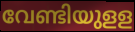
വേണ്ടിയുളള